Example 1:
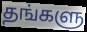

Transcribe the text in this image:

தங்களு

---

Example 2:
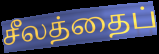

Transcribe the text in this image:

சீலத்தைப்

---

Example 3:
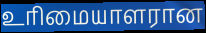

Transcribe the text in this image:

உரிமையாளரான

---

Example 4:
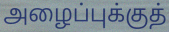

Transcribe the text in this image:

அழைப்புக்குத்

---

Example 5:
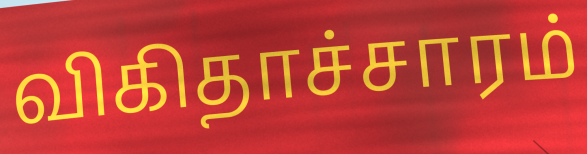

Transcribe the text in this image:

விகிதாச்சாரம்